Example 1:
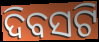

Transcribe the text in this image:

ଦିବସଟି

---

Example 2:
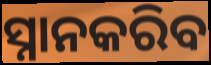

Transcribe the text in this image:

ସ୍ନାନକରିବ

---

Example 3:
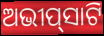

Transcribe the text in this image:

ଅଭୀପ୍‌ସାଟି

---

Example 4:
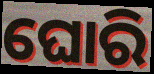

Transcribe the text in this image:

ଘୋରି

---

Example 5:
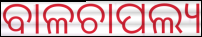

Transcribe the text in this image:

ବାଳଚାପଲ୍ୟ